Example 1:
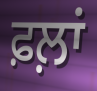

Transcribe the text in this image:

ਫ਼ਲ਼ਾਂ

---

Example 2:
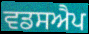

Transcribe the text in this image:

ਵਡਸਐਪ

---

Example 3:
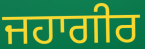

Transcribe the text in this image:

ਜਹਾਗੀਰ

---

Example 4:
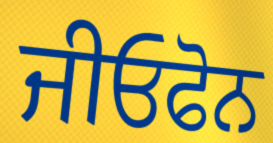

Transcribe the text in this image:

ਜੀਓਫੋਨ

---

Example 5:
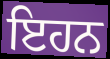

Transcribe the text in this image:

ਇਹਨ